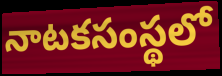
నాటకసంస్థలో